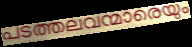
പടത്തലവന്മാരെയും